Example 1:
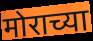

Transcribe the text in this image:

मोराच्या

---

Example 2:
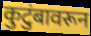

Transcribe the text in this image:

कुटुंबावरून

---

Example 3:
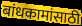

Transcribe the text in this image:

बांधकामांसाठी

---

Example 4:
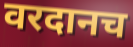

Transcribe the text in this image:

वरदानच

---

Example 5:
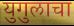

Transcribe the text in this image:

युगुलाचा